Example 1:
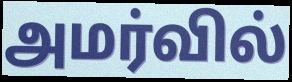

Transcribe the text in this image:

அமர்வில்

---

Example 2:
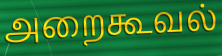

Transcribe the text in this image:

அறைகூவல்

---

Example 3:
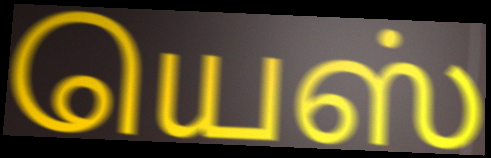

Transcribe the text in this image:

யெஸ்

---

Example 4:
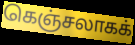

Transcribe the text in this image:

கெஞ்சலாகக்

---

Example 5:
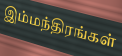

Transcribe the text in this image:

இம்மந்திரங்கள்